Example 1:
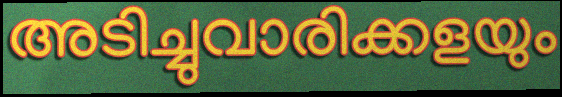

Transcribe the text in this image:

അടിച്ചുവാരിക്കളയും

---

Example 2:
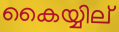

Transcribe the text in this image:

കൈയ്യില്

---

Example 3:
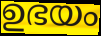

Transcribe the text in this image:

ഉഭയം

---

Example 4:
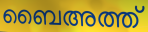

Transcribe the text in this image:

ബൈഅത്ത്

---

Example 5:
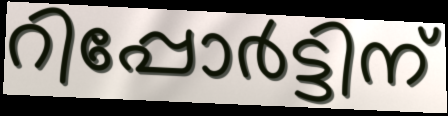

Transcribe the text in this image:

റിപ്പോർട്ടിന്